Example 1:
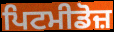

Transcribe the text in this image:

ਪਿਟਮੀਡੋਜ਼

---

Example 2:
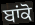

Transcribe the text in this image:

ਬਾਂਕੋ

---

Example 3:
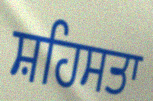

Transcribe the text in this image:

ਸ਼ਹਿਸਤਾ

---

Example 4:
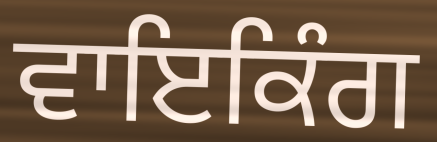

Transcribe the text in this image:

ਵਾਇਕਿੰਗ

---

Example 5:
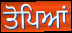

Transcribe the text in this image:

ਤੋਪਿਆਂ